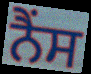
ਨੈਂਸ